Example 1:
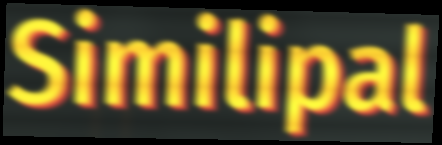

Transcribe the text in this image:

Similipal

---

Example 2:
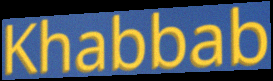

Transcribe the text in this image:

Khabbab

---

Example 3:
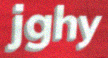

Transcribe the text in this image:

jghy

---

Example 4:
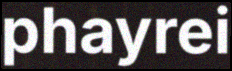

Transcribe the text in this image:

phayrei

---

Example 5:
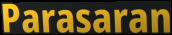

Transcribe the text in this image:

Parasaran